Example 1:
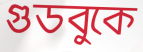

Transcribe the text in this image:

গুডবুকে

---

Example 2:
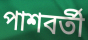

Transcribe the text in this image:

পাশবর্তী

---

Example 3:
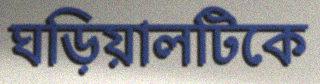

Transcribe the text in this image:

ঘড়িয়ালটিকে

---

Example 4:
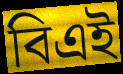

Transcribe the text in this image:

বিএই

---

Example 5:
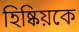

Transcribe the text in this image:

হিষ্কিয়কে